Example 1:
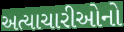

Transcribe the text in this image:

અત્યાચારીઓનો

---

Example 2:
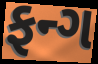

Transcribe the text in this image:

ફન્ગ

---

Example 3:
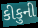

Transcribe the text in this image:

કીકુની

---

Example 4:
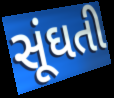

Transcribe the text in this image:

સૂંઘતી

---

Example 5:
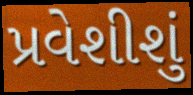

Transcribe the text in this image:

પ્રવેશીશું